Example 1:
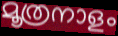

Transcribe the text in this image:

മൂത്രനാളം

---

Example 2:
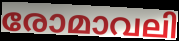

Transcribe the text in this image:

രോമാവലി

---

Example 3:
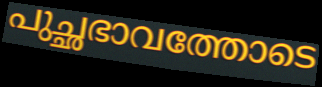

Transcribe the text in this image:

പുച്ഛഭാവത്തോടെ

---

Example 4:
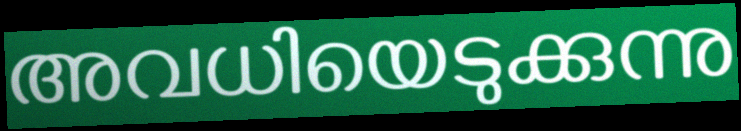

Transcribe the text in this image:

അവധിയെടുക്കുന്നു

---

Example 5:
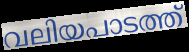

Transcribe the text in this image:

വലിയപാടത്ത്